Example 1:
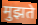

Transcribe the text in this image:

मुझते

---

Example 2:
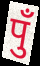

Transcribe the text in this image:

पुँ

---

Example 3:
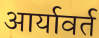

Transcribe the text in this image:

आर्यावर्त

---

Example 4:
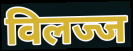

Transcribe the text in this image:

विलज्ज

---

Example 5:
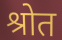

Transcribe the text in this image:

श्रोत